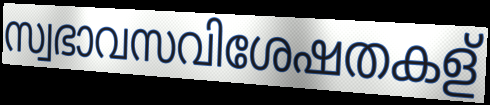
സ്വഭാവസവിശേഷതകള്